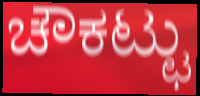
ಚೌಕಟ್ಟು